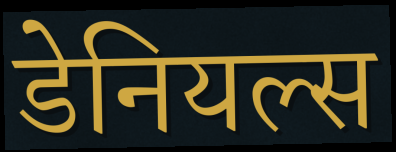
डेनियल्स